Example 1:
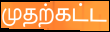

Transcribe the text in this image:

முதற்கட்ட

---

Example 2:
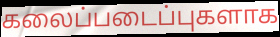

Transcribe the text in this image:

கலைப்படைப்புகளாக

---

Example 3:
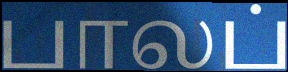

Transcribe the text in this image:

பாலப்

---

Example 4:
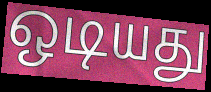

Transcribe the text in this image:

ஒடியது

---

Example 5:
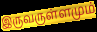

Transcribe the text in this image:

இருவருள்ளமும்